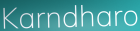
Karndharo